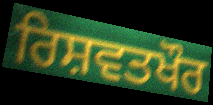
ਰਿਸ਼ਵਤਖੌਰ